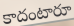
కాదంటారూ